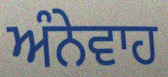
ਅੰਨੇਵਾਹ